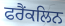
ਫਰੈਂਕਲਿਨ